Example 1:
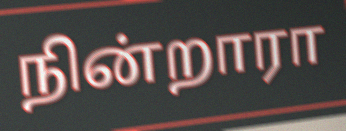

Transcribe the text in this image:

நின்றாரா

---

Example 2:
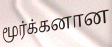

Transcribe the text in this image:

மூர்க்கனான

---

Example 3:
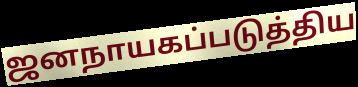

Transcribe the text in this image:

ஜனநாயகப்படுத்திய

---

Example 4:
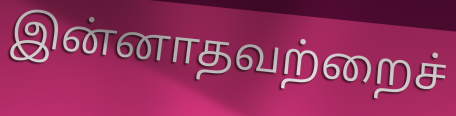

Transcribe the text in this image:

இன்னாதவற்றைச்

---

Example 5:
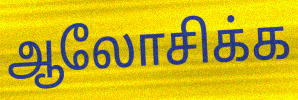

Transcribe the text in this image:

ஆலோசிக்க